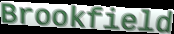
Brookfield